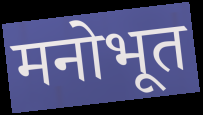
मनोभूत